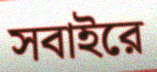
সবাইরে